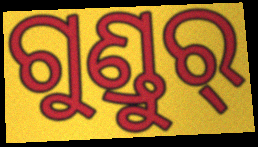
ଗୁଣ୍ଡୁର୍